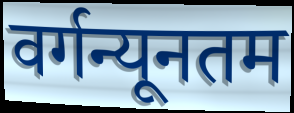
वर्गन्यूनतम